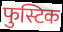
फुस्टिक